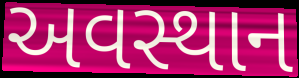
અવસ્થાન